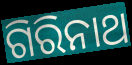
ଗିରିନାଥ